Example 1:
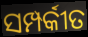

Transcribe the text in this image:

ସମ୍ପର୍କୀତ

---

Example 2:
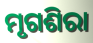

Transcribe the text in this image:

ମୃଗଶିରା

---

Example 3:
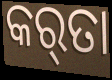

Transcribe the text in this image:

କର୍‌ତା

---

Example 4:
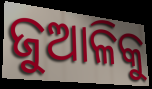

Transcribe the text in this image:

ଜୁଆଳିକୁ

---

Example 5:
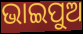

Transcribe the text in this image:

ଭାଇପୁଅ